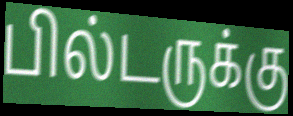
பில்டருக்கு